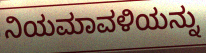
ನಿಯಮಾವಳಿಯನ್ನು